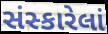
સંસ્કારેલાં